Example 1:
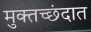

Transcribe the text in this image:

मुक्तच्छंदात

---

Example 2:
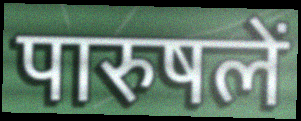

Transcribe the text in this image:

पारुषलें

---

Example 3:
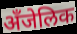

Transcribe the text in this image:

अँजेलिक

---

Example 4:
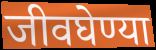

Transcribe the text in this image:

जीवघेण्या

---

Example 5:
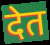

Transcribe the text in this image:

देत